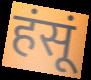
हंसूं